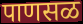
पाणसळ